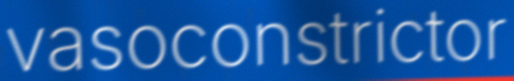
vasoconstrictor